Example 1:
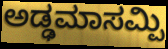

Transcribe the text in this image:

ಅಡ್ಢಮಾಸಮ್ಪಿ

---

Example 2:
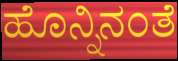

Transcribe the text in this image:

ಹೊನ್ನಿನಂತೆ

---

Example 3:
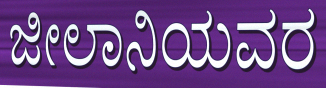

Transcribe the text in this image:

ಜೀಲಾನಿಯವರ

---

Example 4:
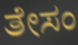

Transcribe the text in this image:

ತೇಸಂ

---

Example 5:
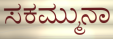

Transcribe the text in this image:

ಸಕಮ್ಮುನಾ